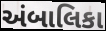
અંબાલિકા